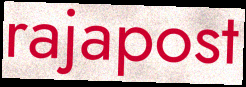
rajapost